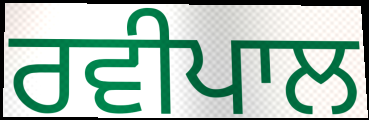
ਰਵੀਪਾਲ